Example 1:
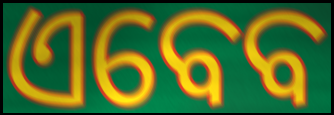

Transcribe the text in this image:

ଏବେବ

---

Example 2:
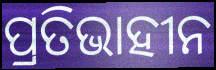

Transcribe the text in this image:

ପ୍ରତିଭାହୀନ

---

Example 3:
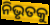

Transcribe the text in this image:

ନିଭୃତକୁ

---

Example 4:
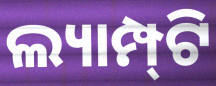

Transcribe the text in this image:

ଲ୍ୟାମ୍ପ୍‍ଟି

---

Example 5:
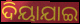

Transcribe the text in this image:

ଦିୟାଯାଇ